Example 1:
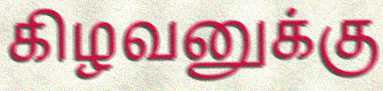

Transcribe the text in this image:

கிழவனுக்கு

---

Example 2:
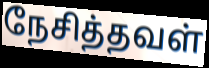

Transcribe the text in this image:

நேசித்தவள்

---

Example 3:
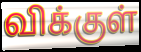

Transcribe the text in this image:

விக்குள்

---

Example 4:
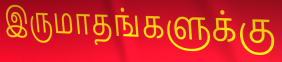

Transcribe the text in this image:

இருமாதங்களுக்கு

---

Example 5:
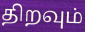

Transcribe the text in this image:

திறவும்